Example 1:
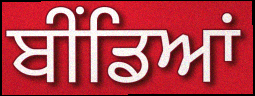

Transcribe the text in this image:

ਬੀਂਡਿਆਂ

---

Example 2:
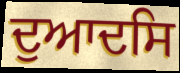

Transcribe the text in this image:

ਦੁਆਦਸਿ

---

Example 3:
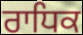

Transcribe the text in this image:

ਰਾਧਿਕ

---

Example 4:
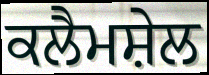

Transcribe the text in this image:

ਕਲੈਮਸ਼ੇਲ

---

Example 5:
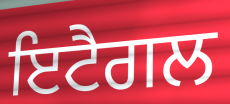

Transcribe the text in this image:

ਇਟੈਗਲ